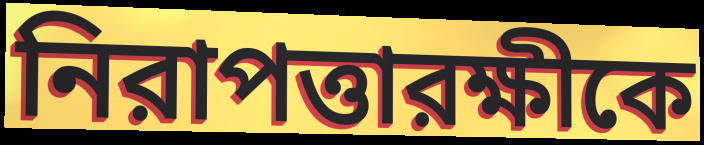
নিরাপত্তারক্ষীকে